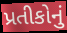
પ્રતીકોનું